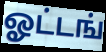
ஓட்டங்